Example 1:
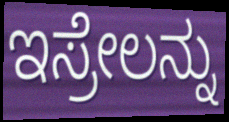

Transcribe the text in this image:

ಇಸ್ರೇಲನ್ನು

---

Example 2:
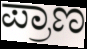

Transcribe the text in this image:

ಪ್ರಾಣ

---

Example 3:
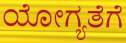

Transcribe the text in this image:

ಯೋಗ್ಯತೆಗೆ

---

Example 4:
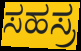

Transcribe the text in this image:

ಸಹಸ್ರ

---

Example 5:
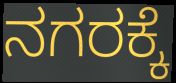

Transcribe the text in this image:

ನಗರಕ್ಕೆ